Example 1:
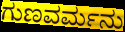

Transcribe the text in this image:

ಗುಣವರ್ಮನು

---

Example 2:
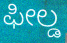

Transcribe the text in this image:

ಫೀಲ್ಡ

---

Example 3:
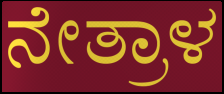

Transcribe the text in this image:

ನೇತ್ರಾಳ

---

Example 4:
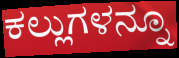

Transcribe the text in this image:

ಕಲ್ಲುಗಳನ್ನೂ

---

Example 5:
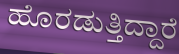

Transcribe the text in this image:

ಹೊರಡುತ್ತಿದ್ದಾರೆ